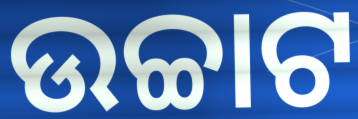
ଉଚ୍ଚାଟ